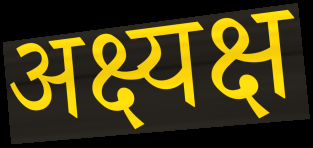
अक्ष्यक्ष